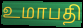
உமாபதி